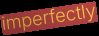
imperfectly